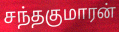
சந்தகுமாரன்